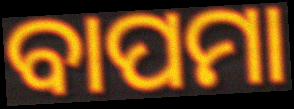
ବାପମା